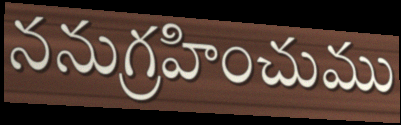
ననుగ్రహించుము